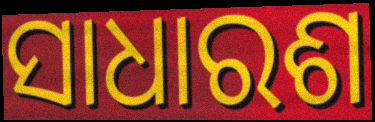
ସାଧାରଶ